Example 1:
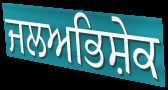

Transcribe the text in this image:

ਜਲਅਭਿਸ਼ੇਕ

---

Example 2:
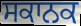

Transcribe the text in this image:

ਸਕਾਨਕ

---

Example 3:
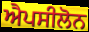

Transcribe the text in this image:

ਐਪਸੀਲੋਨ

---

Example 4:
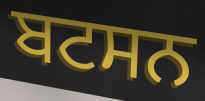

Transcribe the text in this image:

ਬਟਸਨ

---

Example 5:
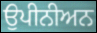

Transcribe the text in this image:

ਉਪੀਨੀਅਨ